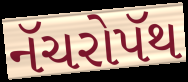
નૅચરોપૅથ